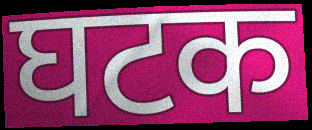
घटक